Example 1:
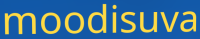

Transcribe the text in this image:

moodisuva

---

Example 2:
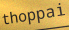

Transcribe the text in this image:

thoppai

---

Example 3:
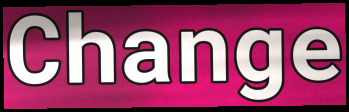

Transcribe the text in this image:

Change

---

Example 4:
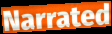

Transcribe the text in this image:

Narrated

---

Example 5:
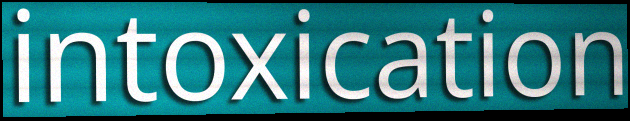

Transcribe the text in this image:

intoxication